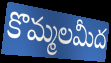
కొమ్మలమీద